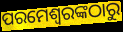
ପରମେଶ୍ଵରଙ୍କଠାରୁ